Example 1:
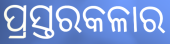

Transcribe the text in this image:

ପ୍ରସ୍ତରକଳାର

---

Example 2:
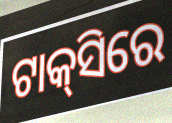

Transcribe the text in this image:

ଟାକ୍‌ସିରେ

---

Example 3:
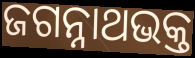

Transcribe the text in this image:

ଜଗନ୍ନାଥଭକ୍ତ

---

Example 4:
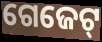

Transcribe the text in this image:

ଗେଜେଟ୍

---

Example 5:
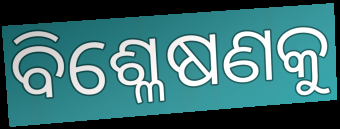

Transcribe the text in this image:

ବିଶ୍ଳେଷଣକୁ